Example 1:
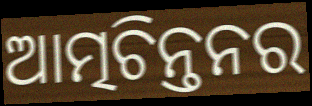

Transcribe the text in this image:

ଆତ୍ମଚିନ୍ତନର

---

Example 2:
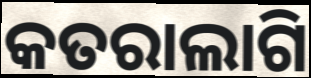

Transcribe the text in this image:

କତରାଲାଗି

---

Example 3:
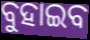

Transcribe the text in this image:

ବୁହାଇବ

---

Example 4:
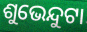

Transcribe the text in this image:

ଶୁଭେନ୍ଦୁଟା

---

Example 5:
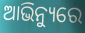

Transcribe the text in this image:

ଆଭିନ୍ୟୁରେ